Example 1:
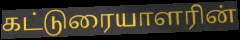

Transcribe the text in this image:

கட்டுரையாளரின்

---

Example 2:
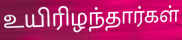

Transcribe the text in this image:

உயிரிழந்தார்கள்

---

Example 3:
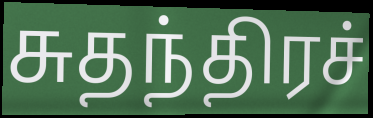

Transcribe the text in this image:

சுதந்திரச்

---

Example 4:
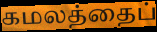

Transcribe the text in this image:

கமலத்தைப்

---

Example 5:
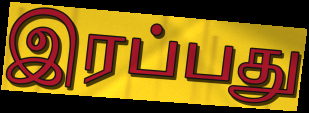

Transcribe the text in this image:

இரப்பது